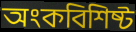
অংকবিশিষ্ট